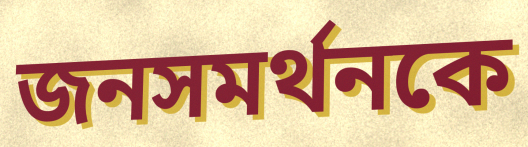
জনসমর্থনকে